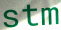
stm